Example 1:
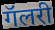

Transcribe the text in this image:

गॅलरी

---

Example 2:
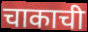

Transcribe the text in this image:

चाकाची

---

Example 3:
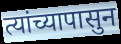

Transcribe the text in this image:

त्यांच्यापासुन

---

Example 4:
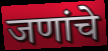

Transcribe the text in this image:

जणांचे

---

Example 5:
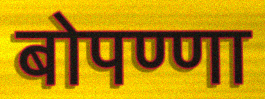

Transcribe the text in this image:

बोपण्णा